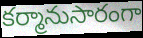
కర్మానుసారంగా